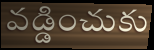
వడ్డించుకు